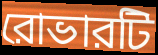
রোভারটি